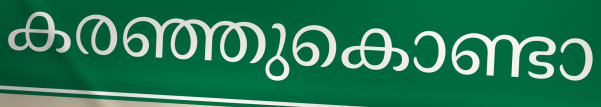
കരഞ്ഞുകൊണ്ടാ